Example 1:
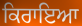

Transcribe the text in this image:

ਕਿਰਾਇਆ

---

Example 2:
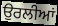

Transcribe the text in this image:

ਉਰਲੀਆਂ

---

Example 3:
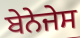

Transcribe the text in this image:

ਬੇਨੇਜੇਸ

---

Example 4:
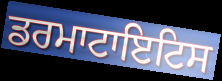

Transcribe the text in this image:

ਡਰਮਾਟਾਇਟਿਸ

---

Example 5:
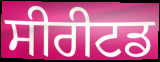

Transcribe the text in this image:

ਸੀਰੀਟਡ